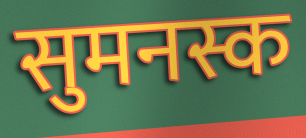
सुमनस्क